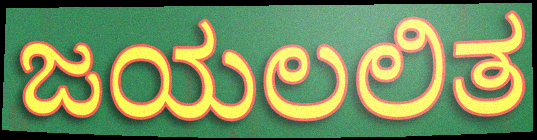
ಜಯಲಲಿತ